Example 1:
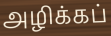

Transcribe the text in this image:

அழிக்கப்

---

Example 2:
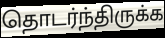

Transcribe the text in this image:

தொடர்ந்திருக்க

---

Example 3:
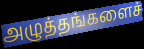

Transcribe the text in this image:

அழுத்தங்களைச்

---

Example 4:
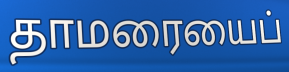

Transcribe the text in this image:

தாமரையைப்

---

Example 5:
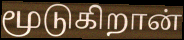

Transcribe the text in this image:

மூடுகிறான்